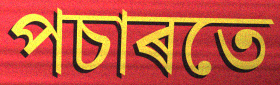
পচাৰতে